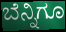
ಬೆನ್ನಿಗೂ